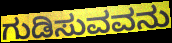
ಗುಡಿಸುವವನು